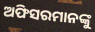
ଅଫିସରମାନଙ୍କୁ